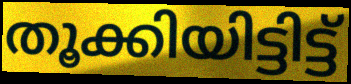
തൂക്കിയിട്ടിട്ട്